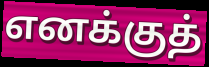
எனக்குத்